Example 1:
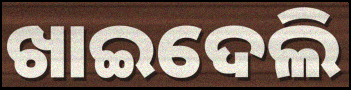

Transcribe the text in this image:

ଖାଇଦେଲି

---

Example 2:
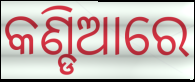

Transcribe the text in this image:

କଣ୍ଡିଆରେ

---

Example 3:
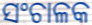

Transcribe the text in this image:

ସଂଚାଳକ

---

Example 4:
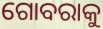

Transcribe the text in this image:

ଗୋବରାକୁ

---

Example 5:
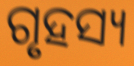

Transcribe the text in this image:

ଗୃହସ୍ୟ